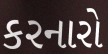
કરનારો